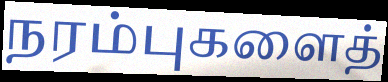
நரம்புகளைத்